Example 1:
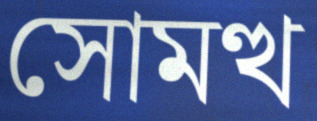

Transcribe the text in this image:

সোমত্থ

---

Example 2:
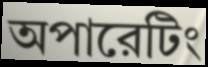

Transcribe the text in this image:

অপারেটিং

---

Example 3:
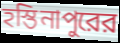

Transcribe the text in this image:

হস্তিনাপুরের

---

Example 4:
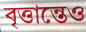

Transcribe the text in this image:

বৃত্তান্তেও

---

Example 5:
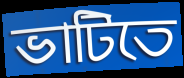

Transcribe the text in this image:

ভাটিতে